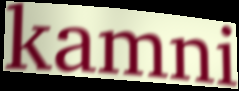
kamni